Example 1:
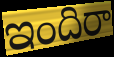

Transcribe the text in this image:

ఇందిరా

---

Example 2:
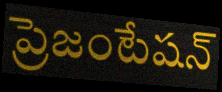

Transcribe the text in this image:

ప్రెజంటేషన్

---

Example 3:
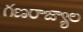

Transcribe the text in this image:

గణరాజ్యాల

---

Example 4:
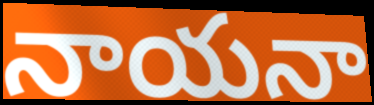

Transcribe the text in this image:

నాయనా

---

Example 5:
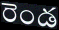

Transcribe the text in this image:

రెండ